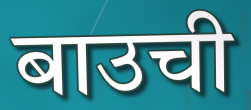
बाउची